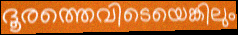
ദൂരത്തെവിടെയെങ്കിലും